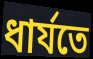
ধার্যতে